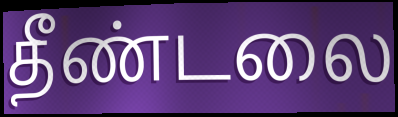
தீண்டலை